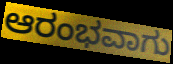
ಆರಂಭವಾಗು